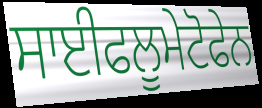
ਸਾਈਫਲੂਮੇਟੋਫੇਨ